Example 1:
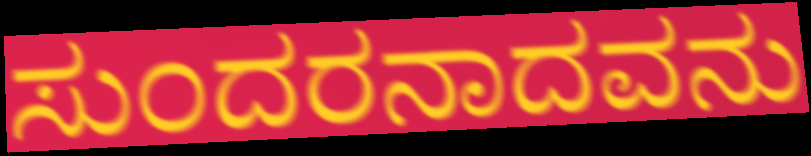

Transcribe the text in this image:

ಸುಂದರನಾದವನು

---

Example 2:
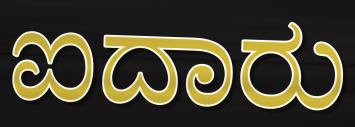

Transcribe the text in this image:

ಐದಾರು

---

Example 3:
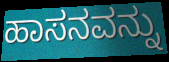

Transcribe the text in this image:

ಹಾಸನವನ್ನು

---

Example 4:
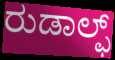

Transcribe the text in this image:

ರುಡಾಲ್ಫ್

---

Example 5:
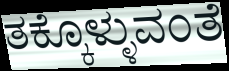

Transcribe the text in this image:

ತಕ್ಕೊಳ್ಳುವಂತೆ